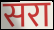
सरा